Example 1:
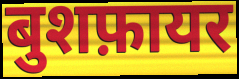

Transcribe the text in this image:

बुशफ़ायर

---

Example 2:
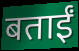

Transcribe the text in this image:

बताईं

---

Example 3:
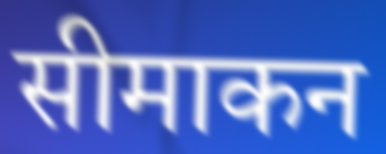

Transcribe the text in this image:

सीमाकन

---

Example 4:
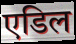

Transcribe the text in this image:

एडिल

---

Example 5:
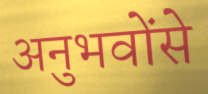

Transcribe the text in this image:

अनुभवोंसे